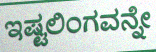
ಇಷ್ಟಲಿಂಗವನ್ನೇ